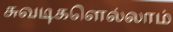
சுவடிகளெல்லாம்